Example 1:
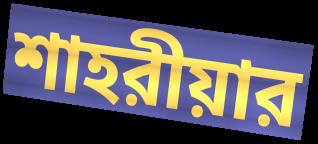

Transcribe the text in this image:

শাহরীয়ার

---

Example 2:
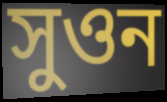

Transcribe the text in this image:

সুওন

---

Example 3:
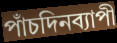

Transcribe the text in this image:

পাঁচদিনব্যাপী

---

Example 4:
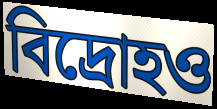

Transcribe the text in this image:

বিদ্রোহও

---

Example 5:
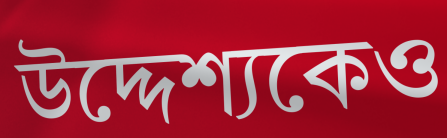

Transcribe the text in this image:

উদ্দেশ্যকেও